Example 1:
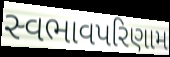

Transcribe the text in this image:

સ્વભાવપરિણામ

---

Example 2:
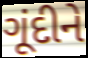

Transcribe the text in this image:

ગૂંદીને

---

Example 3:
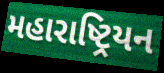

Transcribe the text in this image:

મહારાષ્ટ્રિયન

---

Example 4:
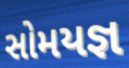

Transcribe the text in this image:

સોમયજ્ઞ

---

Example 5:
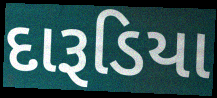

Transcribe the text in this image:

દારૂડિયા